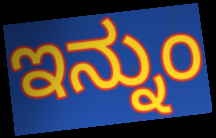
ಇನ್ನುಂ